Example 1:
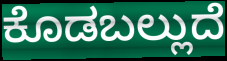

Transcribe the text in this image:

ಕೊಡಬಲ್ಲುದೆ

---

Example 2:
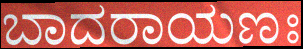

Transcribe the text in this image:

ಬಾದರಾಯಣಃ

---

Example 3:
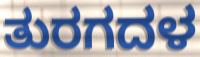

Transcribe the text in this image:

ತುರಗದಳ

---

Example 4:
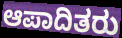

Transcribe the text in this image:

ಆಪಾದಿತರು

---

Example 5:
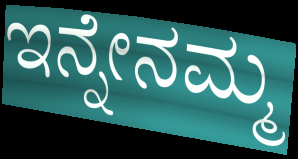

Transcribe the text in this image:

ಇನ್ನೇನಮ್ಮ